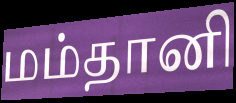
மம்தானி